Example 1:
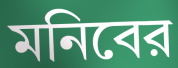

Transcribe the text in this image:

মনিবের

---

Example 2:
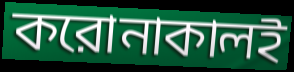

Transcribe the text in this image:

করোনাকালই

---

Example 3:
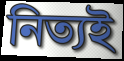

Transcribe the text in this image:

নিত্যই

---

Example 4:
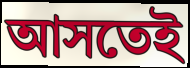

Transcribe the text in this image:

আসতেই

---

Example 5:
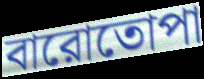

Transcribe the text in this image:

বারোতোপা